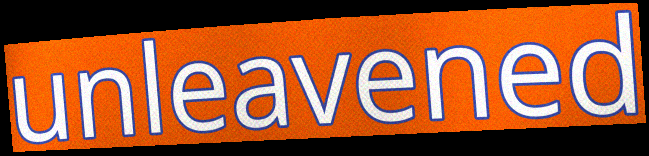
unleavened